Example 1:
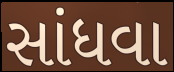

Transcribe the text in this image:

સાંધવા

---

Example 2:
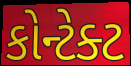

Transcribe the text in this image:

કોન્ટેક્ટ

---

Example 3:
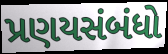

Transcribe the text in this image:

પ્રણયસંબંધો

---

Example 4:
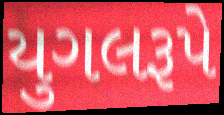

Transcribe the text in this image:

યુગલરૂપે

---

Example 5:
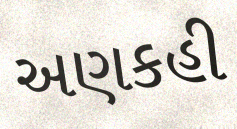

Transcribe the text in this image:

અણકહી